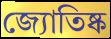
জ্যোতিষ্ক